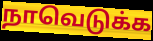
நாவெடுக்க